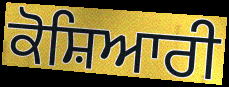
ਕੋਸ਼ਿਆਰੀ